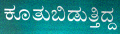
ಕೂತುಬಿಡುತ್ತಿದ್ದ